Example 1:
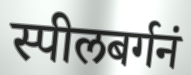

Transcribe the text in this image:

स्पीलबर्गनं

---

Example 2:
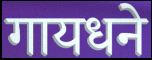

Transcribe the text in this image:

गायधने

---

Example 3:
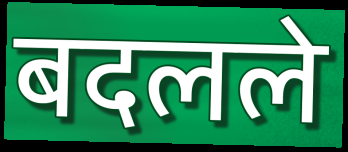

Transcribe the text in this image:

बदलले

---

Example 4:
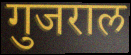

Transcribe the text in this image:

गुजराल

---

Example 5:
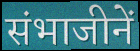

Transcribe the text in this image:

संभाजीनें